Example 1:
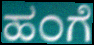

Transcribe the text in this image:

ಹಂಗೆ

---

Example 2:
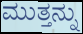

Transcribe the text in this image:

ಮುತ್ತನ್ನು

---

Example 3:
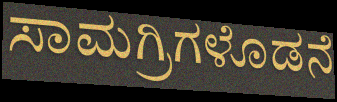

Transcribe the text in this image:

ಸಾಮಗ್ರಿಗಳೊಡನೆ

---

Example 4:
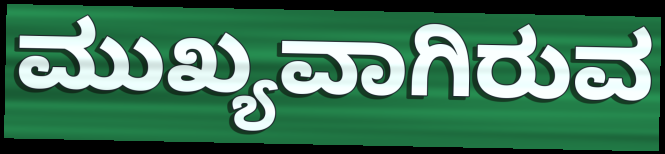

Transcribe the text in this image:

ಮುಖ್ಯವಾಗಿರುವ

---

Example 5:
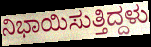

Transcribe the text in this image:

ನಿಭಾಯಿಸುತ್ತಿದ್ದಳು